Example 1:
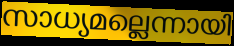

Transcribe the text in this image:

സാധ്യമല്ലെന്നായി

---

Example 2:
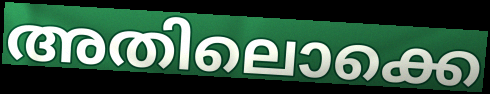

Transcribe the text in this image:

അതിലൊക്കെ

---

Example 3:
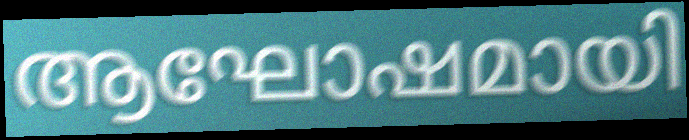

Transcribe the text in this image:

ആഘോഷമായി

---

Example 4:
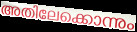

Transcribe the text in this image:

അതിലേക്കൊന്നും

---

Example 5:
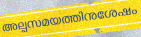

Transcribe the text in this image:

അല്പസമയത്തിനുശേഷം